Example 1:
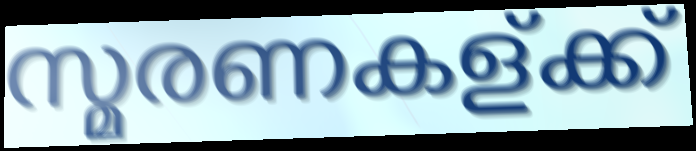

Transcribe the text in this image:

സ്മരണകള്ക്ക്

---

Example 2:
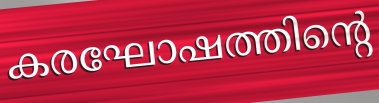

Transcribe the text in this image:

കരഘോഷത്തിന്റെ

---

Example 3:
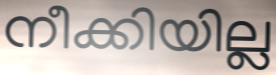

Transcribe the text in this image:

നീക്കിയില്ല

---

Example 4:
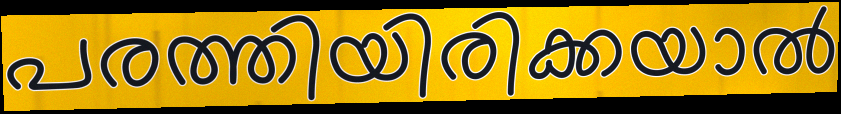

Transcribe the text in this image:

പരത്തിയിരിക്കയാൽ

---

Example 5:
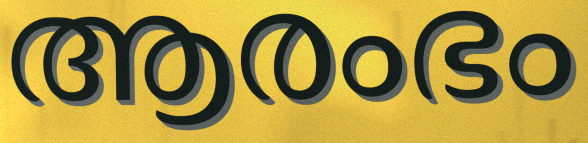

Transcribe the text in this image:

ആരംഭം